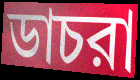
ডাচরা